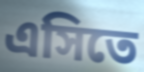
এসিতে